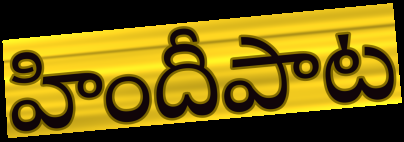
హిందీపాట